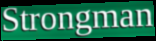
Strongman